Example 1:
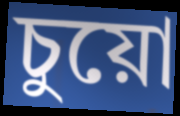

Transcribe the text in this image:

চুয়ো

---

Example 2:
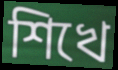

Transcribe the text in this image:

শিখে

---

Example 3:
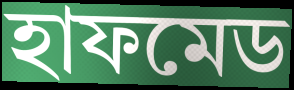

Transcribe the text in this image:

হাফমেড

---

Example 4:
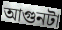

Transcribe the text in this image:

আগুনটা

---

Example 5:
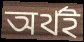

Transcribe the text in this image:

অর্থই